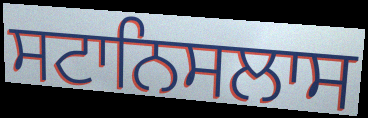
ਸਟਾਨਿਸਲਾਸ